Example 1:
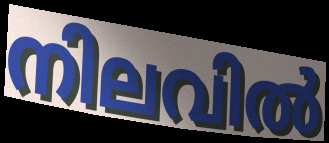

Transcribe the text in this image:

നിലവിൽ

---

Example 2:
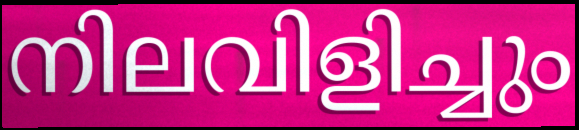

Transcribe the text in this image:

നിലവിളിച്ചും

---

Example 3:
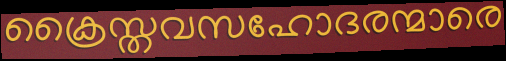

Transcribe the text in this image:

ക്രൈസ്തവസഹോദരന്മാരെ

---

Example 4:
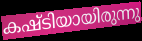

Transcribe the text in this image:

കഷ്ടിയായിരുന്നു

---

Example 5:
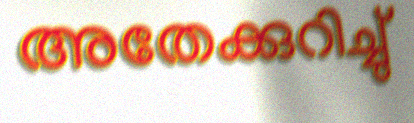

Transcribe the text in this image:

അതേക്കുറിച്ചു്